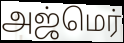
அஜ்மெர்